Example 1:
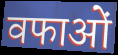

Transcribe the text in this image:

वफाओं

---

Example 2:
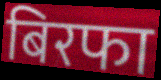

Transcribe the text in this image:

बिरफा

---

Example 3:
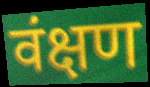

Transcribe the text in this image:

वंक्षण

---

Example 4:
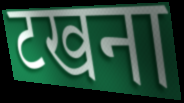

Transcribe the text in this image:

टखना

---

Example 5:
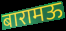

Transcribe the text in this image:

बारामऊ